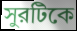
সুরটিকে